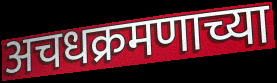
अचधक्रमणाच्या